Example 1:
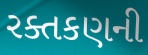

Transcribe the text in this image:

રક્તકણની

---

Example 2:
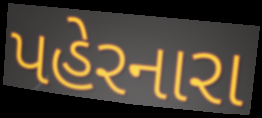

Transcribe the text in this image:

પહેરનારા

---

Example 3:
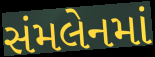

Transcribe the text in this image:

સંમલેનમાં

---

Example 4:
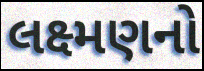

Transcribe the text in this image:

લક્ષ્મણનો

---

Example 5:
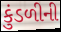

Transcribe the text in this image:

કુંડળીની